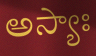
అస్యాః